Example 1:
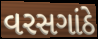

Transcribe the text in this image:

વરસગાંઠે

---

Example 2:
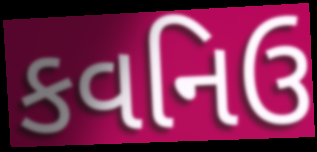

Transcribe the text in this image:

કવનિઉ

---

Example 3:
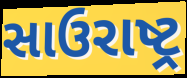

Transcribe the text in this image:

સાઉરાષ્ટ્ર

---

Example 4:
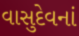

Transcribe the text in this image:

વાસુદેવનાં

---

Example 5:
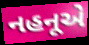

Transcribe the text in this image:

નહનૂએ